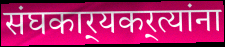
संघकार्यकर्त्यांना